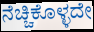
ನೆಚ್ಚಿಕೊಳ್ಳದೇ